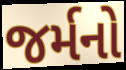
જર્મનો